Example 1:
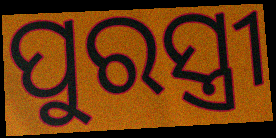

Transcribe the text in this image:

ପୁରସ୍ତ୍ରୀ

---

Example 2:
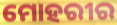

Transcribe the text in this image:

ମୋହରୀର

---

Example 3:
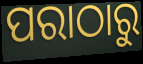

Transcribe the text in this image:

ପରାଠାରୁ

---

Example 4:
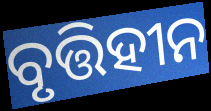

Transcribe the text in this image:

ବୃତ୍ତିହୀନ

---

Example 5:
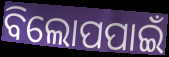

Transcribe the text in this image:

ବିଲୋପପାଇଁ